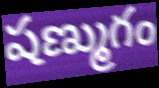
షణ్ముగం